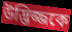
উদ্ভিজ্জকে